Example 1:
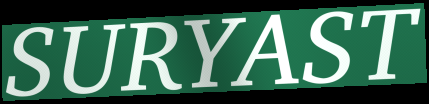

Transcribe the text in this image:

SURYAST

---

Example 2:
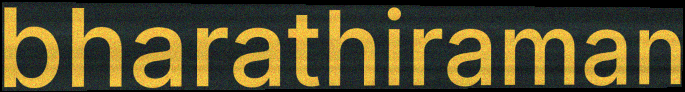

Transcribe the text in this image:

bharathiraman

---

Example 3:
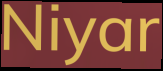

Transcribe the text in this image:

Niyar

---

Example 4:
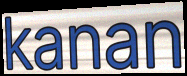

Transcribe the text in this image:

kanan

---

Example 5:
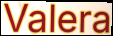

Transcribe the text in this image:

Valera